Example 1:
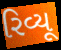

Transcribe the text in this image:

રિવ્યૂ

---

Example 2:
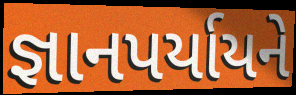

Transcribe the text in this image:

જ્ઞાનપર્યાયને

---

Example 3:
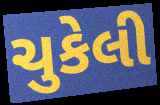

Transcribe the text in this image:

ચુકેલી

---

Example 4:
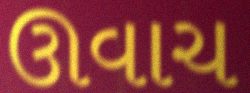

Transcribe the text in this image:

ઊવાચ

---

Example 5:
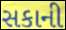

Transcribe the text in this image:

સકાની